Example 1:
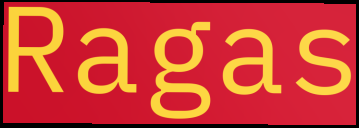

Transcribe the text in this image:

Ragas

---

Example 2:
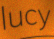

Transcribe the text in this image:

lucy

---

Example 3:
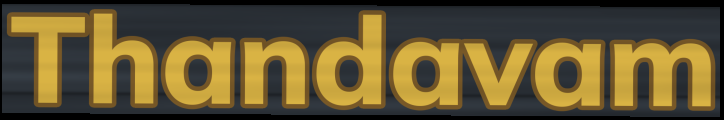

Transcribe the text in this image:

Thandavam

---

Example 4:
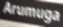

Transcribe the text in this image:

Arumuga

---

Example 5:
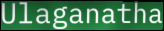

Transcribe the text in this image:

Ulaganatha